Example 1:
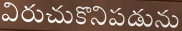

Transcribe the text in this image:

విరుచుకొనిపడును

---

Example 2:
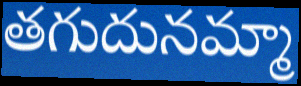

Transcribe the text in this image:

తగుదునమ్మా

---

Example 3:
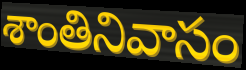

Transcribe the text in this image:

శాంతినివాసం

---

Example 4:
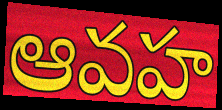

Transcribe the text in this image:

ఆవహ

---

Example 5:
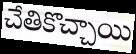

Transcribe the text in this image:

చేతికొచ్చాయి